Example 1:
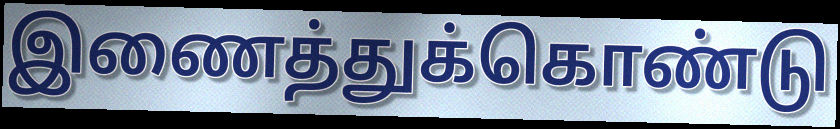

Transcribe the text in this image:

இணைத்துக்கொண்டு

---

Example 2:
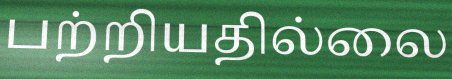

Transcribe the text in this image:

பற்றியதில்லை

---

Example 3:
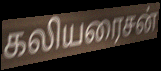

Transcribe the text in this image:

கலியரைசன்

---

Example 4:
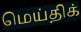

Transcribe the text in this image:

மெய்திக்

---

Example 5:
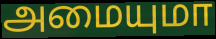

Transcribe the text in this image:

அமையுமா